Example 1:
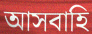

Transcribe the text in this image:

আসবাহি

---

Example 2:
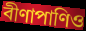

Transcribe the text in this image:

বীণাপাণিও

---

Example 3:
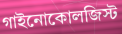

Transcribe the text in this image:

গাইনোকোলজিস্ট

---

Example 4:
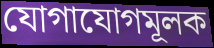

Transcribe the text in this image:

যোগাযোগমূলক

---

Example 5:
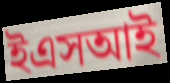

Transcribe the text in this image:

ইএসআই